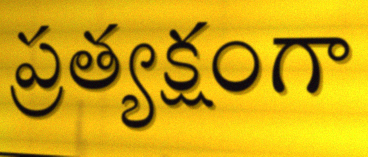
ప్రత్యక్షంగా